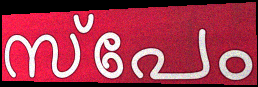
സ്പേം